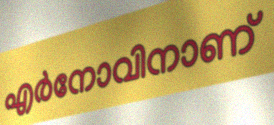
എർനോവിനാണ്